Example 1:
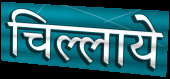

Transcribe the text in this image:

चिल्लाये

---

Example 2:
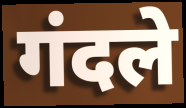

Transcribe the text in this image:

गंदले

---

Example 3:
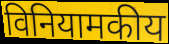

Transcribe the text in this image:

विनियामकीय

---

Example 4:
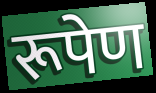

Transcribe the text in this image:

रूपेण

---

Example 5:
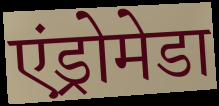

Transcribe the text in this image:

एंड्रोमेडा